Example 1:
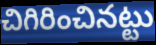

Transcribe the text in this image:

చిగిరించినట్టు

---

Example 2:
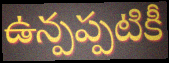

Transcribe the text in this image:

ఉన్పప్పటికీ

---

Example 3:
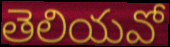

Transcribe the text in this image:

తెలియవో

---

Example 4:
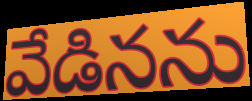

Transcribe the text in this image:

వేడినను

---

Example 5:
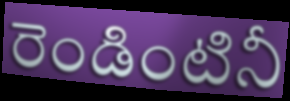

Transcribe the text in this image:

రెండింటినీ